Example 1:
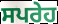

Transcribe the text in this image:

ਸਪਰੇਹ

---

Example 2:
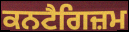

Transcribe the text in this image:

ਕਨਟੈਗਿਜ਼ਮ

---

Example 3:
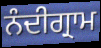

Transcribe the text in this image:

ਨੰਦੀਗ੍ਰਾਮ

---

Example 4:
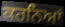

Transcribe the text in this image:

ਕਰਨਿਆਂ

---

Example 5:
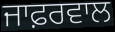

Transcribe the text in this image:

ਜਾਫ਼ਰਵਾਲ